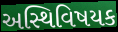
અસ્થિવિષયક